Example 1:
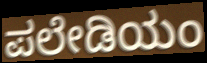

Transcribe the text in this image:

ಪಲೇಡಿಯಂ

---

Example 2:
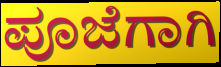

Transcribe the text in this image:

ಪೂಜೆಗಾಗಿ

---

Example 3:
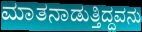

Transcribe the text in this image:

ಮಾತನಾಡುತ್ತಿದ್ದವನು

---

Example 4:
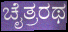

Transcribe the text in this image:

ಚೈತ್ರರಥ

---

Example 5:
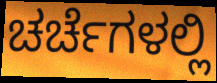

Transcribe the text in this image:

ಚರ್ಚೆಗಳಲ್ಲಿ